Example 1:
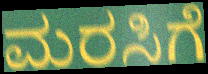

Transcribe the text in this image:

ಮರಸಿಗೆ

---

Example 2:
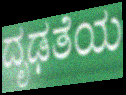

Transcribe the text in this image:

ದೃಢತೆಯ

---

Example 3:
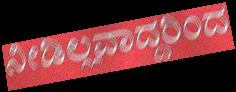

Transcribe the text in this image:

ನೀಡಿಲ್ಲವಾದ್ದರಿಂದ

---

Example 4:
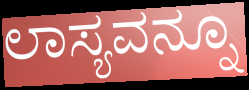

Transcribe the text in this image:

ಲಾಸ್ಯವನ್ನೂ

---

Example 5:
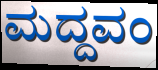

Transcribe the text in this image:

ಮದ್ದವಂ